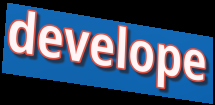
develope